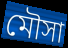
মৌসা